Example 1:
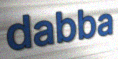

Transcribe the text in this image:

dabba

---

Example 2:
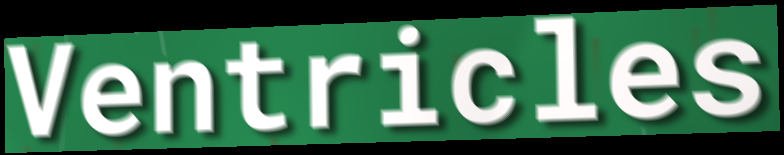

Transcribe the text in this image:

Ventricles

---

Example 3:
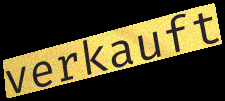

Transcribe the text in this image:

verkauft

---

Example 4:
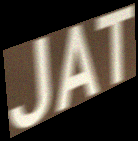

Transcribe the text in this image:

JAT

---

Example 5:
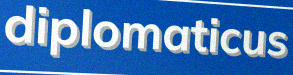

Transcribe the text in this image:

diplomaticus